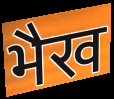
भैख